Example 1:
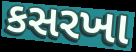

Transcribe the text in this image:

કસરખા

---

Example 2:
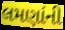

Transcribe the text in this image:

લમણાંની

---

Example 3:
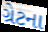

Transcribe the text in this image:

ગ્રેટના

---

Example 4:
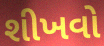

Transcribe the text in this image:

શીખવો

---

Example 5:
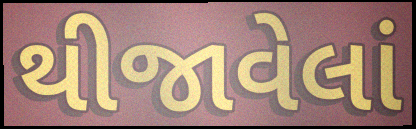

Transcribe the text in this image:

થીજાવેલાં